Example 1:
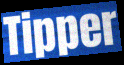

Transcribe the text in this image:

Tipper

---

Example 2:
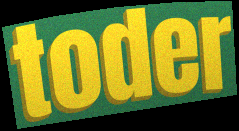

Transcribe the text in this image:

toder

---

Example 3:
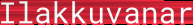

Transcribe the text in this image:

Ilakkuvanar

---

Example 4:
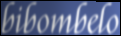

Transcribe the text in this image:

bibombelo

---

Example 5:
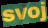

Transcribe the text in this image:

svoj